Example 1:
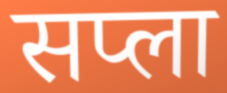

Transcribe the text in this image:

सप्ला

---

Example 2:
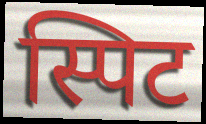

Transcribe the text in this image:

स्पिट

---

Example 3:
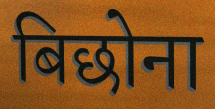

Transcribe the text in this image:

बिछोना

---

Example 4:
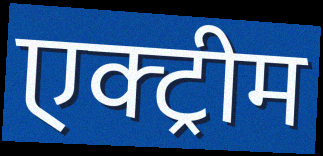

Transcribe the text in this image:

एक्ट्रीम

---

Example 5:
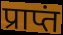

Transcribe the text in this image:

प्राप्तं